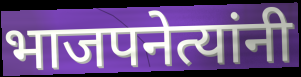
भाजपनेत्यांनी